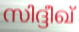
സിദ്ദീഖ്